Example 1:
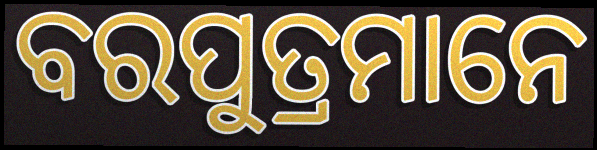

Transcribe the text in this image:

ବରପୁତ୍ରମାନେ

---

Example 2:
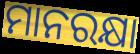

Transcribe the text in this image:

ମାନରକ୍ଷା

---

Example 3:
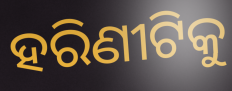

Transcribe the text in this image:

ହରିଣୀଟିକୁ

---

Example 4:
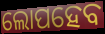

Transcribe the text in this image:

ଲୋପହେବ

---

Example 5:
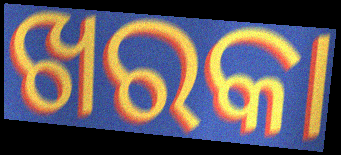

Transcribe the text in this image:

ଖରକା